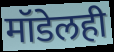
मॉडेलही